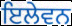
ਇਲੇਵਨ